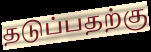
தடுப்பதற்கு